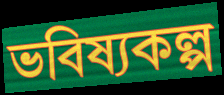
ভবিষ্যকল্প